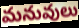
మనువులు